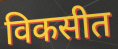
विकसीत